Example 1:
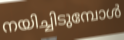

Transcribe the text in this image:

നയിച്ചിടുമ്പോൾ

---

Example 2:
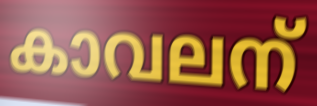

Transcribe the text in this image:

കാവലന്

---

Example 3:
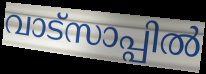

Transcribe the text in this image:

വാട്സാപ്പിൽ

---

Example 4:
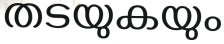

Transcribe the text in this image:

തടയുകയും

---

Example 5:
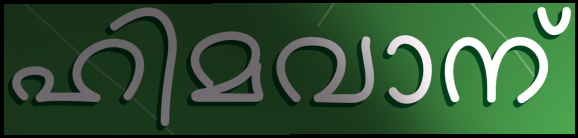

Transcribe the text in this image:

ഹിമവാന്